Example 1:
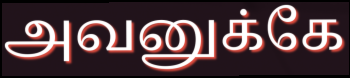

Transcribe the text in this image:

அவனுக்கே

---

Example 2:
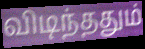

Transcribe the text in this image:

விடிந்ததும்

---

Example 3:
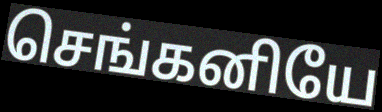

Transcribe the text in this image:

செங்கனியே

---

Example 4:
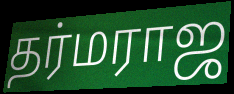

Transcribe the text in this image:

தர்மராஜ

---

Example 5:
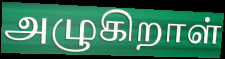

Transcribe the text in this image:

அழுகிறாள்